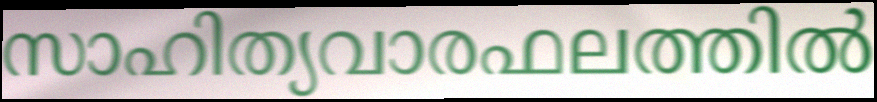
സാഹിത്യവാരഫലത്തിൽ